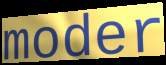
moder